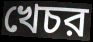
খেচর